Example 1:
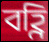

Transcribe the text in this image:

বহ্ণি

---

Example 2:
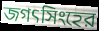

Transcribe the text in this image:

জগৎসিংহের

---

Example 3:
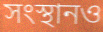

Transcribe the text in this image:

সংস্থানও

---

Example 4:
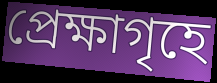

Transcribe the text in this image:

প্রেক্ষাগৃহে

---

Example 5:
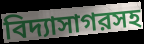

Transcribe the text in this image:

বিদ্যাসাগরসহ